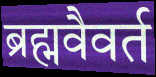
ब्रह्मवैवर्त